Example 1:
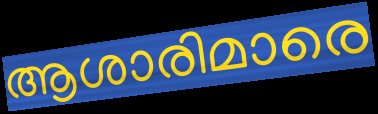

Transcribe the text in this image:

ആശാരിമാരെ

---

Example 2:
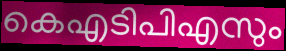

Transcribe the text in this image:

കെഎടിപിഎസും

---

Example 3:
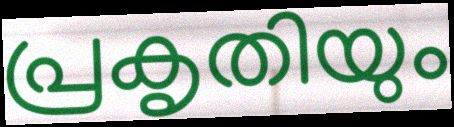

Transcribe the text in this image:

പ്രകൃതിയും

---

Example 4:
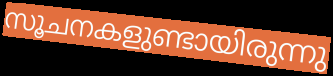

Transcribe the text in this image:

സൂചനകളുണ്ടായിരുന്നു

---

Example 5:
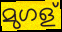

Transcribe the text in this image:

മുഗള്